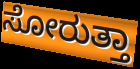
ಸೋರುತ್ತಾ